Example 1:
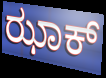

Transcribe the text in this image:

ಝಾಕ್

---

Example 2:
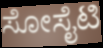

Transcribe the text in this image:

ಸೋಸೈಟಿ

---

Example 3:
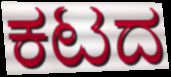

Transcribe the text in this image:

ಕಟದ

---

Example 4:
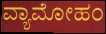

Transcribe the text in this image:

ವ್ಯಾಮೋಹಂ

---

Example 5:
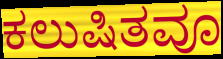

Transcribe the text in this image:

ಕಲುಷಿತವೂ